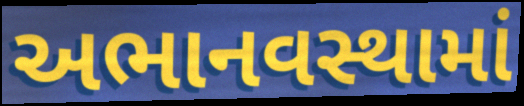
અભાનવસ્થામાં